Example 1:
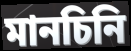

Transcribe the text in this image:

মানচিনি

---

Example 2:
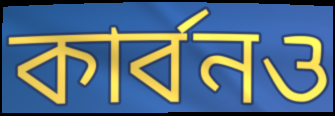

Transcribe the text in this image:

কার্বনও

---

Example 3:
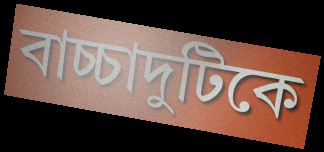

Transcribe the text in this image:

বাচ্চাদুটিকে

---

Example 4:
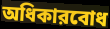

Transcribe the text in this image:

অধিকারবোধ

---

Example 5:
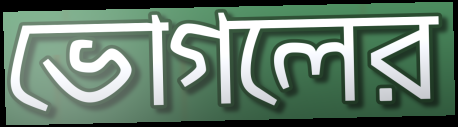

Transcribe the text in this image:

ভোগলের